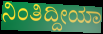
ನಿಂತಿದ್ದೀಯಾ